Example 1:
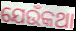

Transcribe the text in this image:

ଯେଉଁକଥା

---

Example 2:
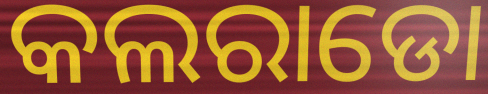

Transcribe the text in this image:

କଲରାଡୋ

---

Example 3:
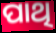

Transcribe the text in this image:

ପାଥି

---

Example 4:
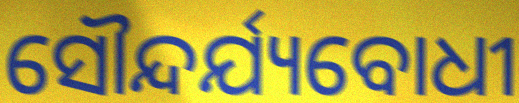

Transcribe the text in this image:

ସୌନ୍ଦର୍ଯ୍ୟବୋଧୀ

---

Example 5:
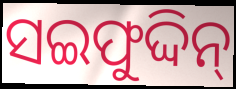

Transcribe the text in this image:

ସଇଫୁଦ୍ଦିନ୍